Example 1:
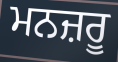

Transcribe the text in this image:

ਮਨਜ਼ਰੂ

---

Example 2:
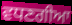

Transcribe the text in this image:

ਵਧਣਗੀਆ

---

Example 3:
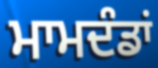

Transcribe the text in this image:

ਮਾਮਦੰਡਾਂ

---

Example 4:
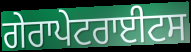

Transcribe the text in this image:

ਗੇਰਾਪੇਟਰਾਈਟਸ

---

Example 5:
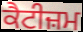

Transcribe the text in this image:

ਕੈਟੀਜ਼ਮ